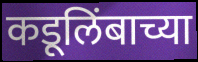
कडूलिंबाच्या